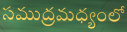
సముద్రమధ్యంలో